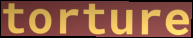
torture